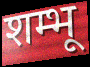
शम्भू